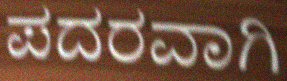
ಪದರವಾಗಿ